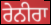
ਰੇਨੀਰਾ